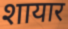
शायार